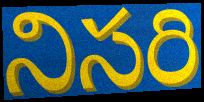
నిసరి